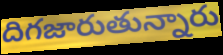
దిగజారుతున్నారు